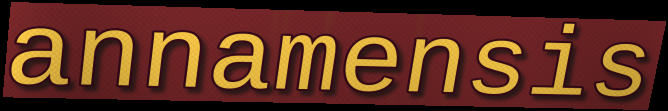
annamensis